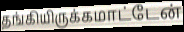
தங்கியிருக்கமாட்டேன்